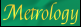
Metrology